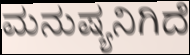
ಮನುಷ್ಯನಿಗಿದೆ